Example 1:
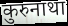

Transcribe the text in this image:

कुरुनाथा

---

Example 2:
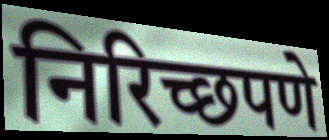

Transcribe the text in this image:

निरिच्छपणे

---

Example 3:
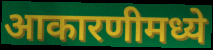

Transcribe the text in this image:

आकारणीमध्ये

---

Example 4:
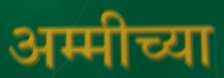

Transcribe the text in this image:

अम्मीच्या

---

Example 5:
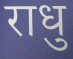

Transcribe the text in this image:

राधु